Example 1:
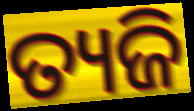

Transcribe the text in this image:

ତ୍ୟଜି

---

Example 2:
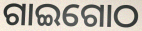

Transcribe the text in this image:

ଗାଇଗୋଠ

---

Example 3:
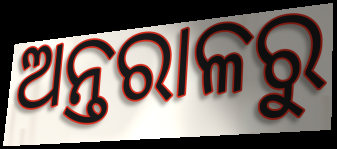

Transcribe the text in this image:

ଅନ୍ତରାଳରୁ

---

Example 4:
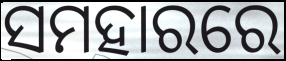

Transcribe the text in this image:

ସମହାରରେ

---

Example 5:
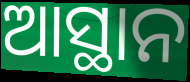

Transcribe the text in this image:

ଆସ୍ଥାନ